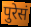
पुरेसं